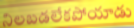
నిలబడలేకపోయాడు